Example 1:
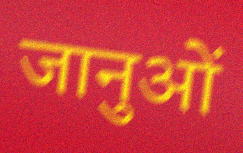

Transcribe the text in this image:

जानुओं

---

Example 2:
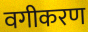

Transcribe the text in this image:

वगीकरण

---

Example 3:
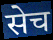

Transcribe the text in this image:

सेच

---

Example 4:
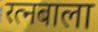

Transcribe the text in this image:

रत्नबाला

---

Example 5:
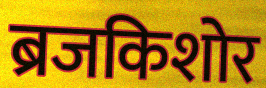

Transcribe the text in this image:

ब्रजकिशोर